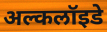
अल्कलॉइडे